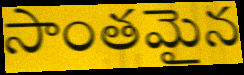
సాంతమైన